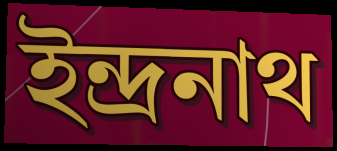
ইন্দ্ৰনাথ